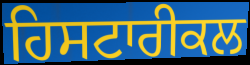
ਹਿਸਟਾਰੀਕਲ